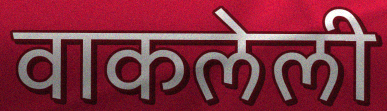
वाकलेली